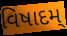
વિષાદમ્